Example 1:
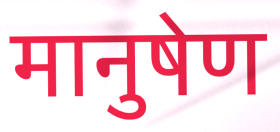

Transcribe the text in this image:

मानुषेण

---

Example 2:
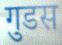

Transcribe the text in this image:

गुडस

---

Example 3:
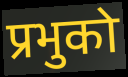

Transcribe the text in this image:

प्रभुको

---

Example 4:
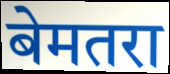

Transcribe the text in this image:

बेमतरा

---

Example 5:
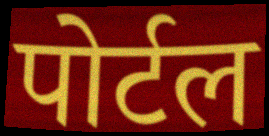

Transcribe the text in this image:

पोर्टल